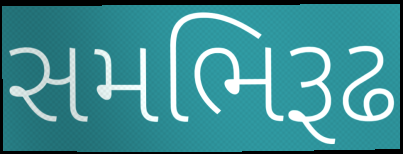
સમભિરૂઢ